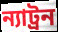
ন্যাট্রন